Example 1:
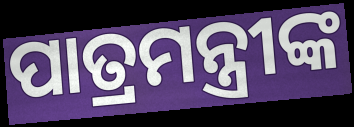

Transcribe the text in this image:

ପାତ୍ରମନ୍ତ୍ରୀଙ୍କ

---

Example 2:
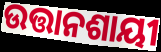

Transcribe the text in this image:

ଉତ୍ତାନଶାୟୀ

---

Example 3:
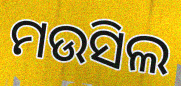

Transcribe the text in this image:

ମଉସିଲ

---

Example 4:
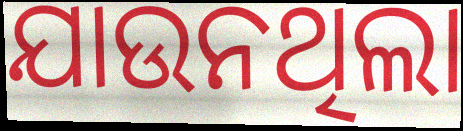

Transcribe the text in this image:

ଯାଉନଥିଲା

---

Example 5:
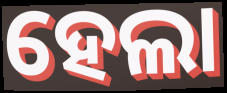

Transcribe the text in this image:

ହେଲା